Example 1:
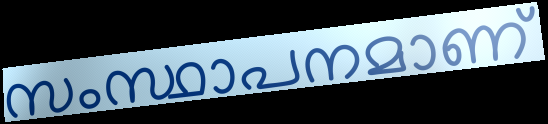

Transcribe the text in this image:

സംസ്ഥാപനമാണ്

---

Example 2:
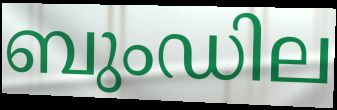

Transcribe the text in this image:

ബുംഡില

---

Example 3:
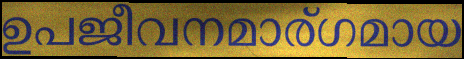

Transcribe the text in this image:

ഉപജീവനമാര്ഗമായ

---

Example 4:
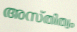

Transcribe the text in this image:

അസ്‌തിത്വം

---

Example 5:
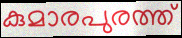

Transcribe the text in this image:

കുമാരപുരത്ത്